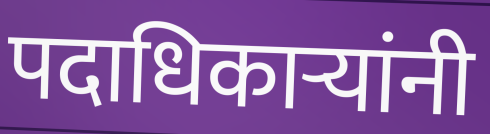
पदाधिकाऱ्यांनी